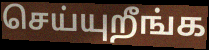
செய்யுறீங்க